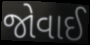
જોવાઈ